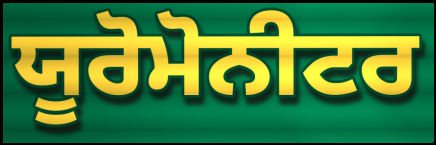
ਯੂਰੋਮੋਨੀਟਰ